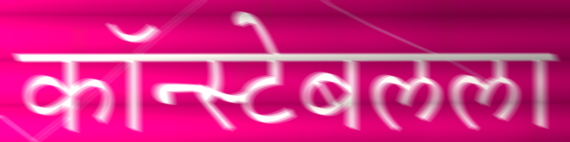
कॉन्स्टेबलला